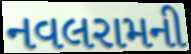
નવલરામની